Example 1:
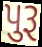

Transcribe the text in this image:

પુરૂ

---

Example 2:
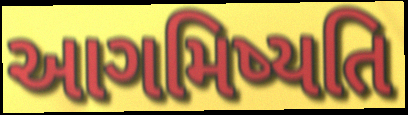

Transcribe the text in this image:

આગમિષ્યતિ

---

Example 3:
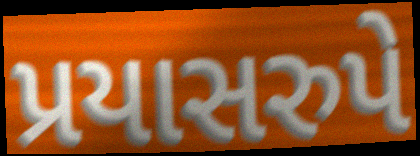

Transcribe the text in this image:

પ્રયાસરુપે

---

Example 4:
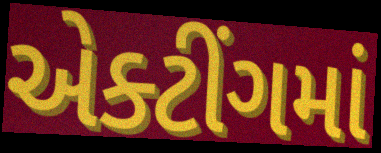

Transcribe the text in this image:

એક્ટીંગમાં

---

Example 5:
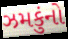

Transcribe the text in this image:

ઝમકુંનો